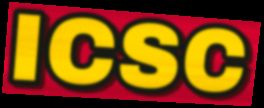
ICSC